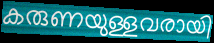
കരുണയുള്ളവരായി